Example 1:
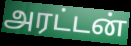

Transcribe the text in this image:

அரட்டன்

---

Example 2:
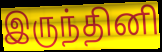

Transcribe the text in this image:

இருந்தினி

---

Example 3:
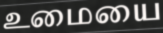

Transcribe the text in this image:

உமையை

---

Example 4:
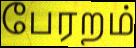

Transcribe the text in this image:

பேரறம்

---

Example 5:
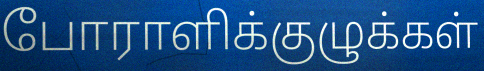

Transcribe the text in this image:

போராளிக்குழுக்கள்